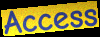
Access